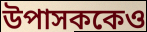
উপাসককেও